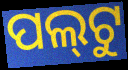
ପଲ୍‍ଟୁ